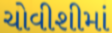
ચોવીશીમાં